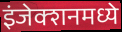
इंजेक्शनमध्ये